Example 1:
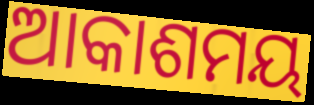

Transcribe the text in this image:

ଆକାଶମୟ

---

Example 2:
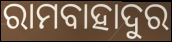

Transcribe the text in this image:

ରାମବାହାଦୁର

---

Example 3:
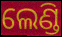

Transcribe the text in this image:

ଲେଣ୍ଡି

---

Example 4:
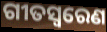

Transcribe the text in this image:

ଗୀତସ୍ବରେଣ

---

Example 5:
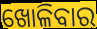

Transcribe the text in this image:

ଖୋଳିବାର